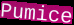
Pumice